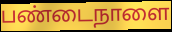
பண்டைநாளை